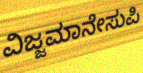
ವಿಜ್ಜಮಾನೇಸುಪಿ